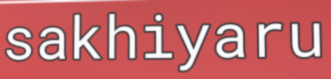
sakhiyaru